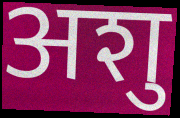
अशु